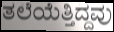
ತಲೆಯೆತ್ತಿದ್ದವು